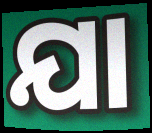
ଯା